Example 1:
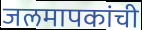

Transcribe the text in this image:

जलमापकांची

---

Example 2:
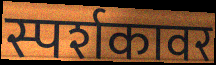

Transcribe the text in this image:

स्पर्शकावर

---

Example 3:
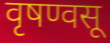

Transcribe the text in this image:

वृषण्वसू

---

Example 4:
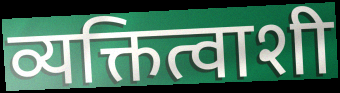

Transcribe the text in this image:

व्यक्तित्वाशी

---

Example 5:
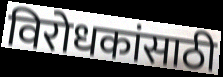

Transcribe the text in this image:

विरोधकांसाठी